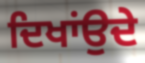
ਦਿਖਾਂਉਦੇ